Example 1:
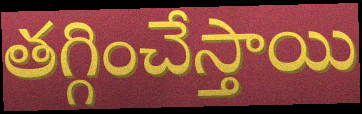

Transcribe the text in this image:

తగ్గించేస్తాయి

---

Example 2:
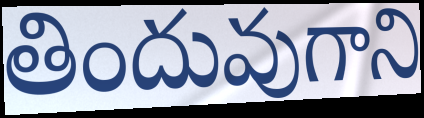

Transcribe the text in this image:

తిందువుగాని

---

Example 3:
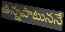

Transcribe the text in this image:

ఉన్నపాటుననే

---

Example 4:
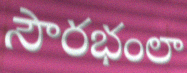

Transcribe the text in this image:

సౌరభంలా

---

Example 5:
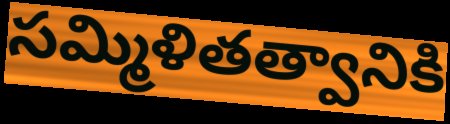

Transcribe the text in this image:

సమ్మిళితత్వానికి